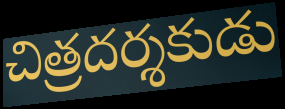
చిత్రదర్శకుడు